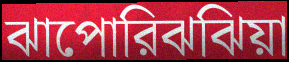
ঝাপোরিঝঝিয়া